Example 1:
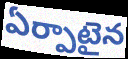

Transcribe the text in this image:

ఏర్పాటైన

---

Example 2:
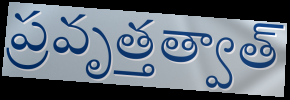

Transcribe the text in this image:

ప్రవృత్తత్వాత్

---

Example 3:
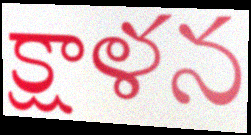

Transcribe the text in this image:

క్షాళన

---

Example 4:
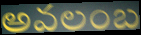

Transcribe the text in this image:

అవలంబ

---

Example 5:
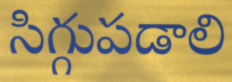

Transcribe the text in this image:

సిగ్గుపడాలి